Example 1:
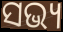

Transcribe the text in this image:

ସଭ୍ୟ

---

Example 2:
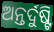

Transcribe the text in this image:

ଅନ୍ତର୍ଦୁଷ୍ଟି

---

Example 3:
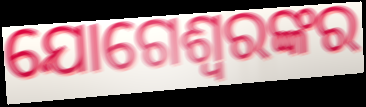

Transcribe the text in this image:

ଯୋଗେଶ୍ଵରଙ୍କର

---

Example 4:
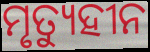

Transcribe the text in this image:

ମୃତ୍ୟୁହୀନ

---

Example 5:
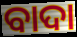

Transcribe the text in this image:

ବାଦା